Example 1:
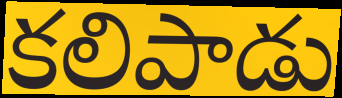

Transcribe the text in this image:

కలిపాడు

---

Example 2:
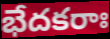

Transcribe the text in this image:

భేదకరాః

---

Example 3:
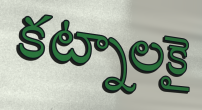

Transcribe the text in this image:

కట్నాలకై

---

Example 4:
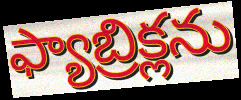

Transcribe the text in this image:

ఫ్యాబ్రిక్లను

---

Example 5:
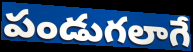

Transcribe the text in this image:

పండుగలాగే